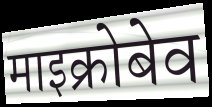
माइक्रोबेव